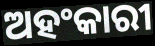
ଅହଂକାରୀ